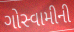
ગોસ્વામીની